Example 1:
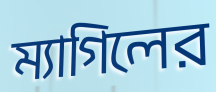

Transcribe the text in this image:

ম্যাগিলের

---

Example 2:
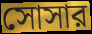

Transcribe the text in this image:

সোসার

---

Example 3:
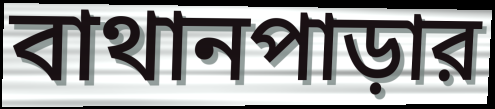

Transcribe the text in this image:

বাথানপাড়ার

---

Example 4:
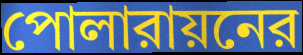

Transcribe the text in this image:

পোলারায়নের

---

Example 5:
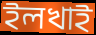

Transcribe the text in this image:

ইলখাই